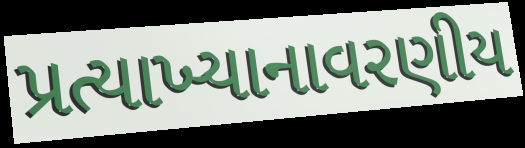
પ્રત્યાખ્યાનાવરણીય